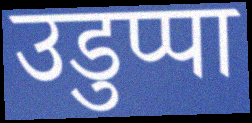
उडुप्पा